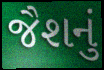
જૈશનું